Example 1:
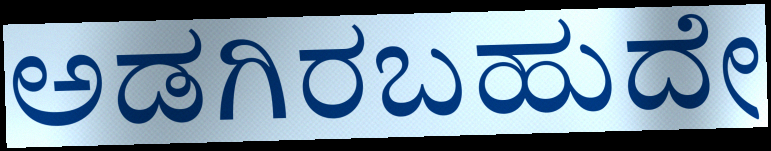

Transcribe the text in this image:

ಅಡಗಿರಬಹುದೇ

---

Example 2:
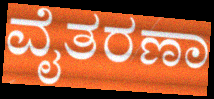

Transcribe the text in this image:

ವೈತರಣಾ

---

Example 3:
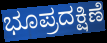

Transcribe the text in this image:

ಭೂಪ್ರದಕ್ಷಿಣೆ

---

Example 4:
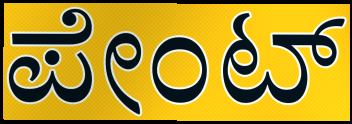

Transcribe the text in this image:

ಪೇಂಟ್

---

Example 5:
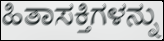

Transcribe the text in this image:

ಹಿತಾಸಕ್ತಿಗಳನ್ನು